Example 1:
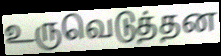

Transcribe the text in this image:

உருவெடுத்தன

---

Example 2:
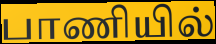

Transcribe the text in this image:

பாணியில்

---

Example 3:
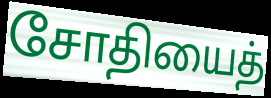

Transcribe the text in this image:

சோதியைத்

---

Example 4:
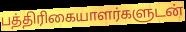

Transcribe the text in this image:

பத்திரிகையாளர்களுடன்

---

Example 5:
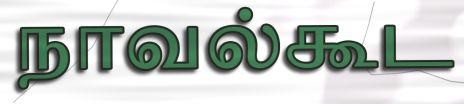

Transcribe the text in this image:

நாவல்கூட